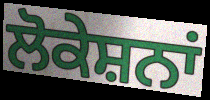
ਲੋਕੇਸ਼ਨਾਂ